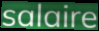
salaire